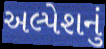
અલ્પેશનું